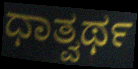
ಧಾತ್ವರ್ಥ